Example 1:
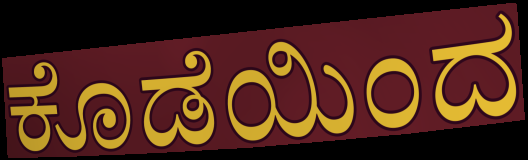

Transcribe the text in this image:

ಕೊಡೆಯಿಂದ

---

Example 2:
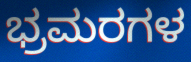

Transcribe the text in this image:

ಭ್ರಮರಗಳ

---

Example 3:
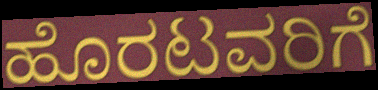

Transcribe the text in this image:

ಹೊರಟವರಿಗೆ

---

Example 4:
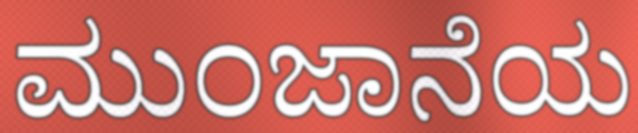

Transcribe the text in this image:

ಮುಂಜಾನೆಯ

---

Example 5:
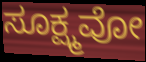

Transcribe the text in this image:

ಸೂಕ್ಷ್ಮವೋ